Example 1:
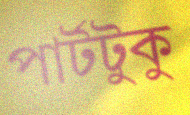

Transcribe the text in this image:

পার্টটুকু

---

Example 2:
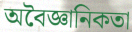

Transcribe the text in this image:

অবৈজ্ঞানিকতা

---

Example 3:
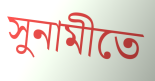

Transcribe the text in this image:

সুনামীতে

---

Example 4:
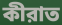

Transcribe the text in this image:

কীরাত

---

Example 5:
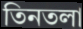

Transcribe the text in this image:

তিনতলা